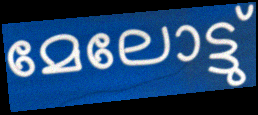
മേലോട്ടു്